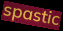
spastic